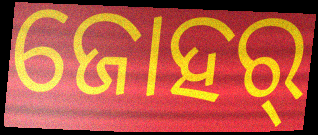
ଜୋହର୍